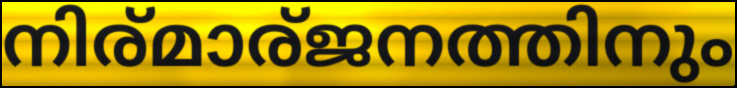
നിര്മാര്ജനത്തിനും